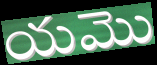
యమొ